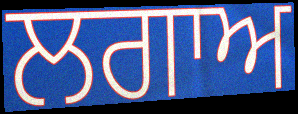
ਲਗਾਅ